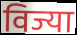
विज्या